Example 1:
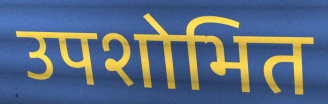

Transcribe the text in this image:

उपशोभित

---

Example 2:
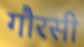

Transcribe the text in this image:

गौरसी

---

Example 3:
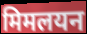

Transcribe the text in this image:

मिमलयन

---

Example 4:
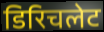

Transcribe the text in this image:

डिरिचलेट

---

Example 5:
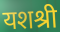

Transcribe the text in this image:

यशश्री